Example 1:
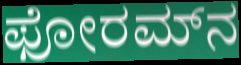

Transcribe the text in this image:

ಫೋರಮ್‌ನ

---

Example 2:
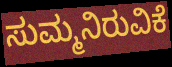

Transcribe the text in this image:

ಸುಮ್ಮನಿರುವಿಕೆ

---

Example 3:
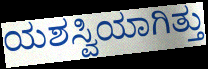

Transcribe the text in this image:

ಯಶಸ್ವಿಯಾಗಿತ್ತು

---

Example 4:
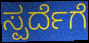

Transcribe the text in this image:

ಸ್ಪರ್ದೆಗೆ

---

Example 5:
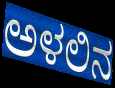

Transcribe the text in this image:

ಅಳಲಿನ